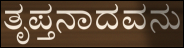
ತೃಪ್ತನಾದವನು